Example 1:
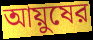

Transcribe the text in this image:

আয়ুষের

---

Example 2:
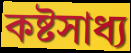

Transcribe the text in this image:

কষ্টসাধ্য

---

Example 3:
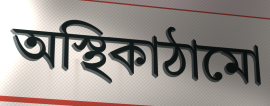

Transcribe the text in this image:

অস্থিকাঠামো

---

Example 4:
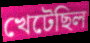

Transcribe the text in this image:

খেটেছিল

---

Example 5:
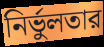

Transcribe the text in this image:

নির্ভুলতার